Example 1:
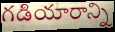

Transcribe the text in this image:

గడియారాన్ని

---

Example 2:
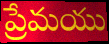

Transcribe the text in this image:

ప్రేమయు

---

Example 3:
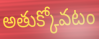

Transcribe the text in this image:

అతుక్కోవటం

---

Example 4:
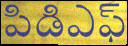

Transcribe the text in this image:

పిడిఎఫ్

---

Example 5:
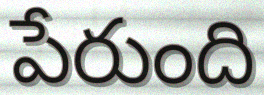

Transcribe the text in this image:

పేరుంది